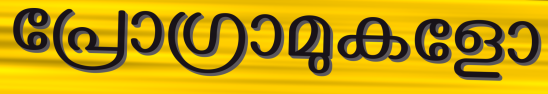
പ്രോഗ്രാമുകളോ